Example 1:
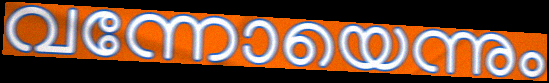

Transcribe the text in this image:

വന്നോയെന്നും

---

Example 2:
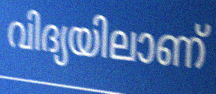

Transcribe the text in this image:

വിദ്യയിലാണ്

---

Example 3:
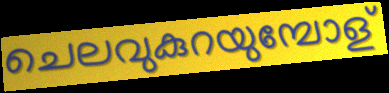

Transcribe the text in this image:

ചെലവുകുറയുമ്പോള്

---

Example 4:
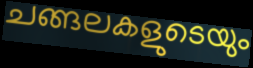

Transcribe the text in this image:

ചങ്ങലകളുടെയും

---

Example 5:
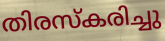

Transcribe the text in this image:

തിരസ്കരിച്ചു